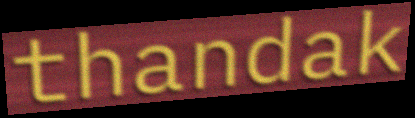
thandak